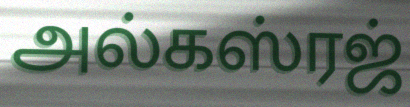
அல்கஸ்ரஜ்